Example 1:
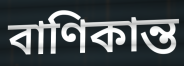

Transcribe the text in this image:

বাণিকান্ত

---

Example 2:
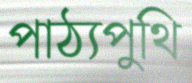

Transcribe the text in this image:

পাঠ্যপুথি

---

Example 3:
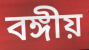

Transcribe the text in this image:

বঙ্গীয়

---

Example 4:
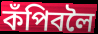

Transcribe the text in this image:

কঁপিবলৈ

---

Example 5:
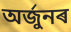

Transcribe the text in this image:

অৰ্জুনৰ